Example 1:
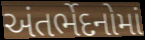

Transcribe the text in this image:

અંતર્ભેદનોમાં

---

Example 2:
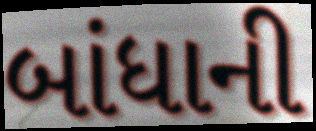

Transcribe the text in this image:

બાંધાની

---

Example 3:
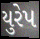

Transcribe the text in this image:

યુરેપ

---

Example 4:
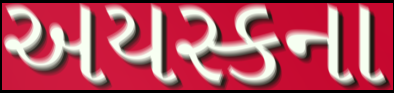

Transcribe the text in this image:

અયસ્કના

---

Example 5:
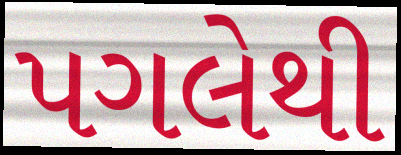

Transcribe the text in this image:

પગલેથી